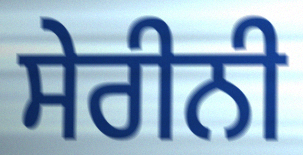
ਸੇਰੀਨੀ